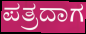
ಪತ್ರದಾಗ